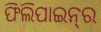
ଫିଲିପାଇନ୍‌ର